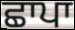
ਛਾਪਾ